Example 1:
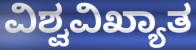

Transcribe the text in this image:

ವಿಶ್ವವಿಖ್ಯಾತ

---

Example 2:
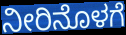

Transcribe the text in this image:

ನೀರಿನೊಳಗೆ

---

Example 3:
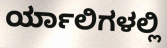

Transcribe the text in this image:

ರ್ಯಾಲಿಗಳಲ್ಲಿ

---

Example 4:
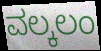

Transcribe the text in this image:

ವಲ್ಕಲಂ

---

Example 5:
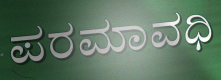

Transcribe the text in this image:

ಪರಮಾವಧಿ